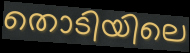
തൊടിയിലെ